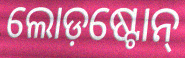
ଲୋଡ଼ଷ୍ଟୋନ୍